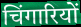
चिंगारियों